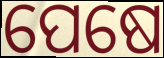
ପେଷେ